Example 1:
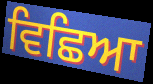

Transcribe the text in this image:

ਵਿਛਿਆ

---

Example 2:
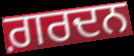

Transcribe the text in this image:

ਗ਼ਰਦਨ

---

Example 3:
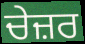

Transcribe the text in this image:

ਚੇਜ਼ਰ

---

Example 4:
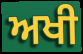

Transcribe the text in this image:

ਅਖੀ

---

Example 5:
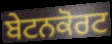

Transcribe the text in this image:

ਬੇਟਨਕੋਰਟ